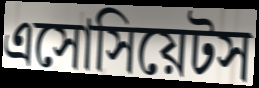
এসোসিয়েটস